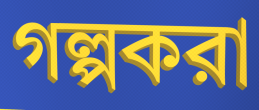
গল্পকরা